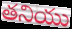
తనియు